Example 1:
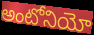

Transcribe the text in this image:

అంటోనియో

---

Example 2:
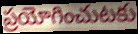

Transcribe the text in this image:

ప్రయోగించుటకు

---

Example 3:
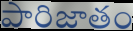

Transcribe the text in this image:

పారిజాతం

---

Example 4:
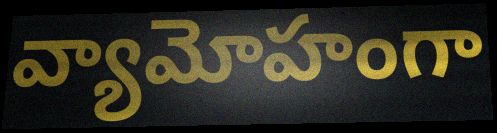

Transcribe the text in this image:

వ్యామోహంగా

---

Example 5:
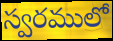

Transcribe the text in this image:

స్వరములో